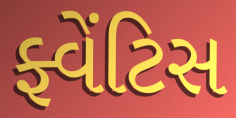
ફ્વેંટિસ